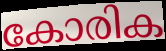
കോരിക